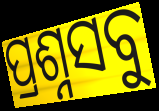
ପ୍ରଶ୍ନସବୁ